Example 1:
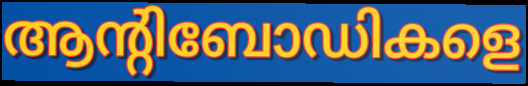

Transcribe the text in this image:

ആന്റിബോഡികളെ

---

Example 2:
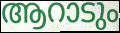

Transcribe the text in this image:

ആറാടും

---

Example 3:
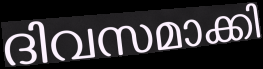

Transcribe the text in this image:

ദിവസമാക്കി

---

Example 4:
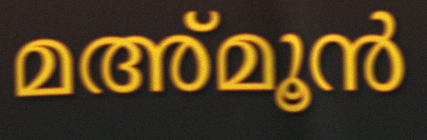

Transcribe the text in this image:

മഅ്മൂൻ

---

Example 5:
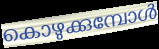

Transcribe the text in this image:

കൊഴുക്കുമ്പോൾ